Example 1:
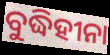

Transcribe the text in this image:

ବୁଦ୍ଧିହୀନା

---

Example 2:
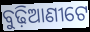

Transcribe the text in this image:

ବୁଢ଼ିଆଣୀଟେ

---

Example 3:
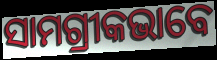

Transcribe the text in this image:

ସାମଗ୍ରୀକଭାବେ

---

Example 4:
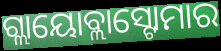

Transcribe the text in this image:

ଗ୍ଲାୟୋବ୍ଲାସ୍ଟୋମାର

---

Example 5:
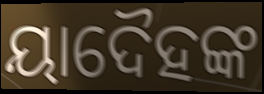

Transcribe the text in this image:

ୟାଦୈହଙ୍କ